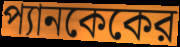
প্যানকেকের